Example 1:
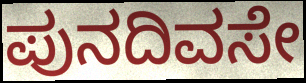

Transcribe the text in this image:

ಪುನದಿವಸೇ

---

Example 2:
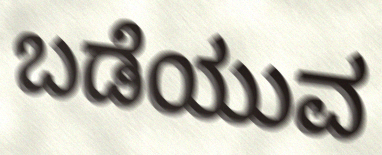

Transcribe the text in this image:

ಬಡೆಯುವ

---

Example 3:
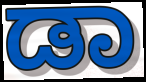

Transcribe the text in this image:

ಡಾ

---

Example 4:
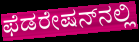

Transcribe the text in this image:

ಫೆಡರೇಷನ್‌ನಲ್ಲಿ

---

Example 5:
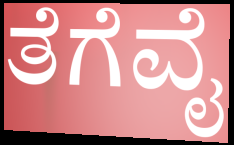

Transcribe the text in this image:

ತೆಗೆವೈ